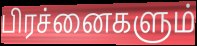
பிரச்னைகளும்